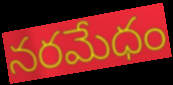
నరమేధం